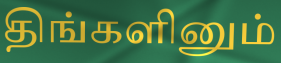
திங்களினும்